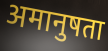
अमानुषता